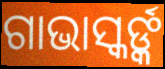
ଗାଭାସ୍କର୍ଙ୍କ